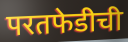
परतफेडीची